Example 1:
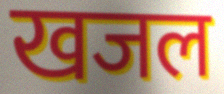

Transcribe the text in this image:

खजल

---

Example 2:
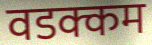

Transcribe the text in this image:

वडक्कम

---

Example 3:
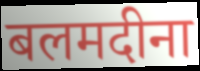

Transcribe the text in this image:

बलमदीना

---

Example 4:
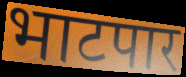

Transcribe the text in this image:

भाटपार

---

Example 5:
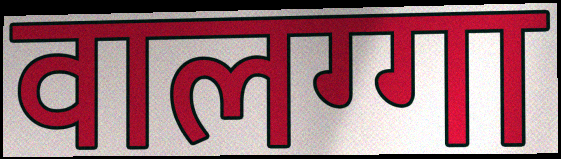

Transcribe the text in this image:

वालग्गा